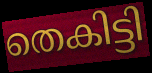
തെകിട്ടി